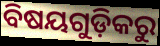
ବିଷୟଗୁଡ଼ିକରୁ